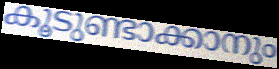
കൂടുണ്ടാക്കാനും